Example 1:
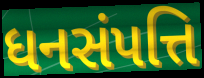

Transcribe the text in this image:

ધનસંપત્તિ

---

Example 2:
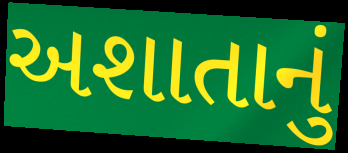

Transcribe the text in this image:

અશાતાનું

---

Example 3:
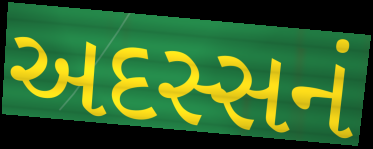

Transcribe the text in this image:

અદસ્સનં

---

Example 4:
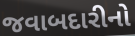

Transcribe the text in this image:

જવાબદારીનો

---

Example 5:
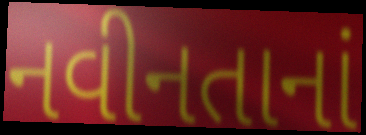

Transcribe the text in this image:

નવીનતાનાં